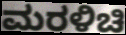
ಮರಳಿಚಿ